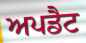
ਅਪਡੈਟ